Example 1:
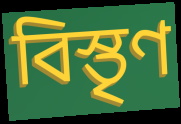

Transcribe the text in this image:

বিস্তৃণ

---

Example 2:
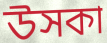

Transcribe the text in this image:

উসকা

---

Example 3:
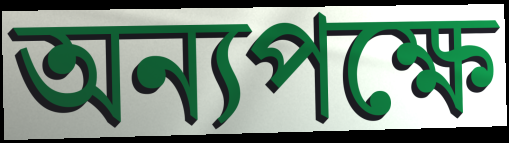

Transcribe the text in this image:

অন্যপক্ষে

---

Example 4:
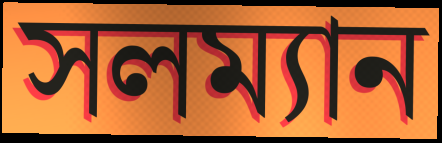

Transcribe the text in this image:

সলম্যান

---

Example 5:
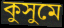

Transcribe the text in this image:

কুসুমে